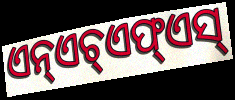
ଏନ୍ଏଚ୍ଏଫ୍ଏସ୍